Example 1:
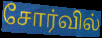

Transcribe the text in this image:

சோர்வில்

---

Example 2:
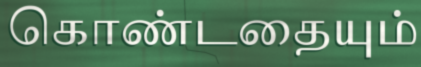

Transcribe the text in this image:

கொண்டதையும்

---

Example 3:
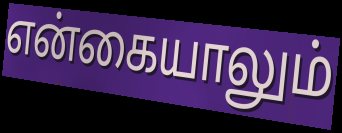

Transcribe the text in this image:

என்கையாலும்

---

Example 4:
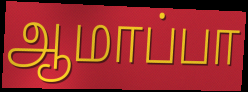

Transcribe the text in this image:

ஆமாப்பா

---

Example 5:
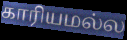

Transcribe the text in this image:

காரியமல்ல